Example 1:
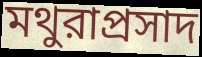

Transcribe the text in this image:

মথুরাপ্রসাদ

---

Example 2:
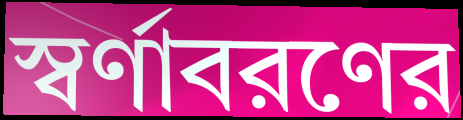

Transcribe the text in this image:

স্বর্ণাবরণের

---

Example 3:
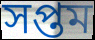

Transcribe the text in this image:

সপ্তম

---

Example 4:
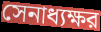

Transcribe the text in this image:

সেনাধ্যক্ষর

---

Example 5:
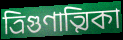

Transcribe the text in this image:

ত্রিগুণাত্মিকা